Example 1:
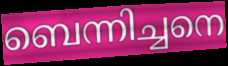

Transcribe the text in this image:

ബെന്നിച്ചനെ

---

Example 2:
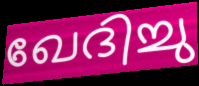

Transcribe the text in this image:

ഖേദിച്ചു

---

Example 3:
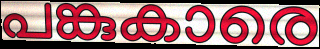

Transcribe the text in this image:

പങ്കുകാരെ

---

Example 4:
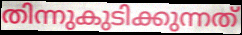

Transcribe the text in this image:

തിന്നുകുടിക്കുന്നത്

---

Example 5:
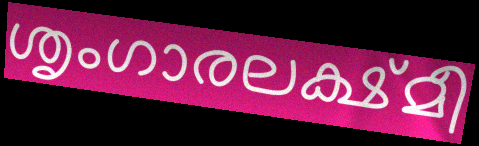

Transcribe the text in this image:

ശൃംഗാരലക്ഷ്മീ